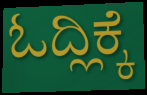
ಓದ್ಲಿಕ್ಕೆ